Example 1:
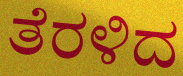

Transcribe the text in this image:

ತೆರಳಿದ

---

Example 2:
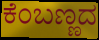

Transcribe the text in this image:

ಕೆಂಬಣ್ಣದ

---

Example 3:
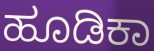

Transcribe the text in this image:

ಹೂಡಿಕಾ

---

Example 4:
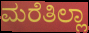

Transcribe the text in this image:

ಮರೆತಿಲ್ಲಾ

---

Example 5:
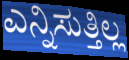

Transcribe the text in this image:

ಎನ್ನಿಸುತ್ತಿಲ್ಲ